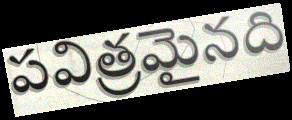
పవిత్రమైనది